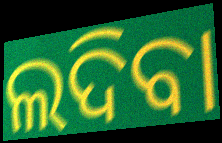
ଲଦିବା